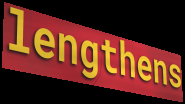
lengthens